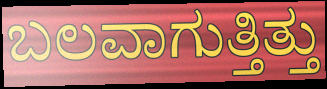
ಬಲವಾಗುತ್ತಿತ್ತು